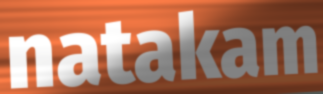
natakam